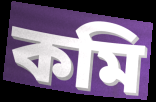
কমি